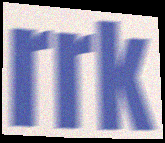
rrk